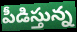
పీడిస్తున్న